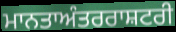
ਮਾਨਤਾਅੰਤਰਰਾਸ਼ਟਰੀ